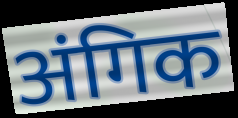
अंगिक